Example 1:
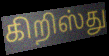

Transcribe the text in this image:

கிறிஸ்து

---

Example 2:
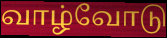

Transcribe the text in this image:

வாழ்வோடு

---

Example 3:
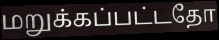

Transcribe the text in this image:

மறுக்கப்பட்டதோ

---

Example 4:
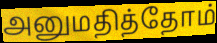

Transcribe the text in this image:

அனுமதித்தோம்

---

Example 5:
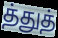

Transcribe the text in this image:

த்துத்